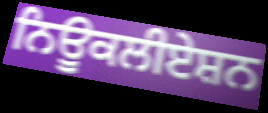
ਨਿਊਕਲੀਏਸ਼ਨ